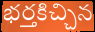
భర్తకిచ్చిన